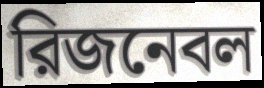
রিজনেবল